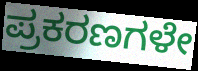
ಪ್ರಕರಣಗಳೇ